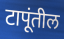
टापूंतील